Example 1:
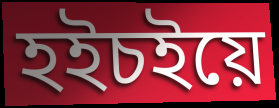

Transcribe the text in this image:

হইচইয়ে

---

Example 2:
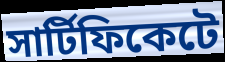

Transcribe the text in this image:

সার্টিফিকেটে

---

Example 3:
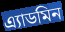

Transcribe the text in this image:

এ্যাডমিন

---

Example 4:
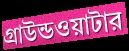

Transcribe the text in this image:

গ্রাউন্ডওয়াটার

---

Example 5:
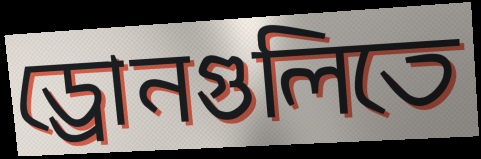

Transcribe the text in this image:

ড্রোনগুলিতে